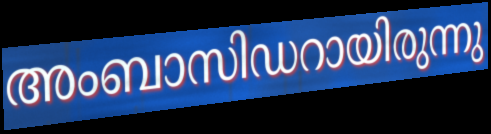
അംബാസിഡറായിരുന്നു